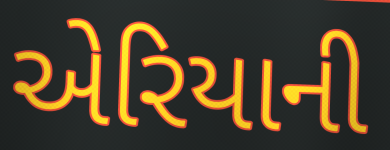
એરિયાની